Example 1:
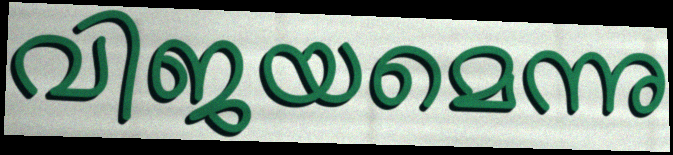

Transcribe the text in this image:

വിജയമെന്നു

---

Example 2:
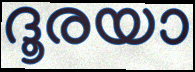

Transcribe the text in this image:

ദൂരയാ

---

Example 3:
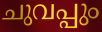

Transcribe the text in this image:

ചുവപ്പും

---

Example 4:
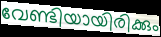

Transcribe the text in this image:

വേണ്ടിയായിരിക്കും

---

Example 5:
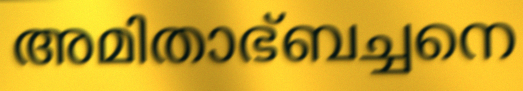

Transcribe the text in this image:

അമിതാഭ്ബച്ചനെ